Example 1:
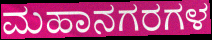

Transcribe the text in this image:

ಮಹಾನಗರಗಳ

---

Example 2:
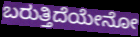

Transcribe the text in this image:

ಬರುತ್ತಿದೆಯೇನೋ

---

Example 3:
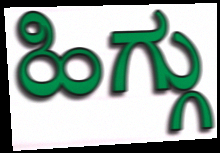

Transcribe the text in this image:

ಹಿಗ್ಗು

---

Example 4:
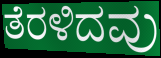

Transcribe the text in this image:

ತೆರಳಿದವು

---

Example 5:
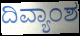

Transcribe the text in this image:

ದಿವ್ಯಾಂಶ